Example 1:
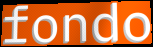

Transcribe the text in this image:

fondo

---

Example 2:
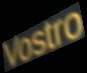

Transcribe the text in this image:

Vostro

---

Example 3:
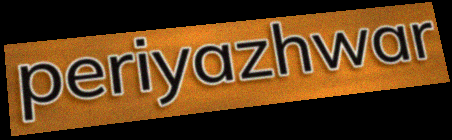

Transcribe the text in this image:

periyazhwar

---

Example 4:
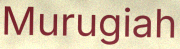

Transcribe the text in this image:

Murugiah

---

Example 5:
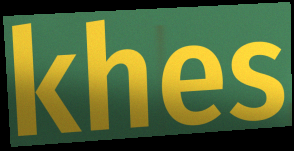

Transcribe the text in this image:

khes